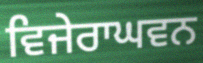
ਵਿਜੇਰਾਘਵਨ